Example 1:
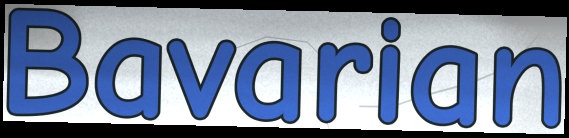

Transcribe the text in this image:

Bavarian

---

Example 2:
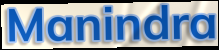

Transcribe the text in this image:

Manindra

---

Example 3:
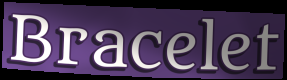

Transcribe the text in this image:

Bracelet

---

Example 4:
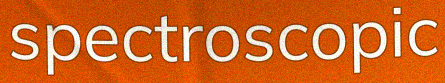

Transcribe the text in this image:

spectroscopic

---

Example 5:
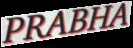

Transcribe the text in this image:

PRABHA